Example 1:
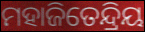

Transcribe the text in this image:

ମହାଜିତେନ୍ଦ୍ରିୟ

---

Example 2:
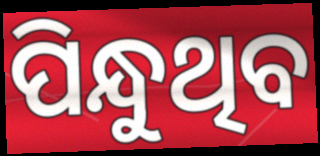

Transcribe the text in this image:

ପିନ୍ଧୁଥିବ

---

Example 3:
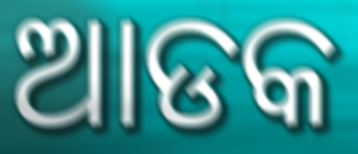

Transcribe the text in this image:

ଆଡକ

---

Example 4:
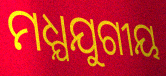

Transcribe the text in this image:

ମଧ୍ଯଯୁଗୀୟ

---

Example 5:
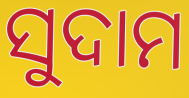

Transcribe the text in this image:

ସୁଦାମ